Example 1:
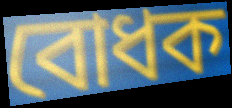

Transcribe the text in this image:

বোধক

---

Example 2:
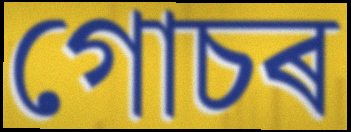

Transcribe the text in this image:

গোচৰ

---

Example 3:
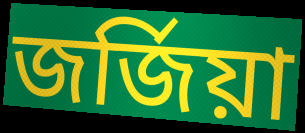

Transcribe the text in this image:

জৰ্জিয়া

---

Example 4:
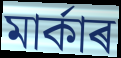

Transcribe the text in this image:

মাৰ্কাৰ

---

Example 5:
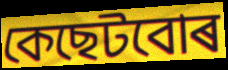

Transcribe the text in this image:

কেছেটবোৰ